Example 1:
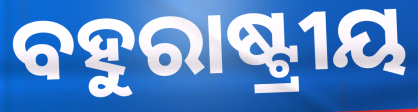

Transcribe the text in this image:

ବହୁରାଷ୍ଟ୍ରୀୟ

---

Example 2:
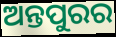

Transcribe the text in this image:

ଅନ୍ତପୁରର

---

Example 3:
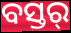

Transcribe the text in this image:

ବସ୍ତର୍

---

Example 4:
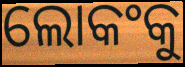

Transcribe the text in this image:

ଲୋକଂକୁ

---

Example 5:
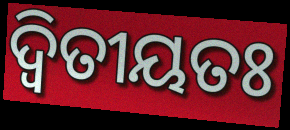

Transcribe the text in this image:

ଦ୍ବିତୀୟତଃ